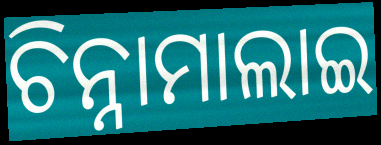
ଚିନ୍ନାମାଲାଇ